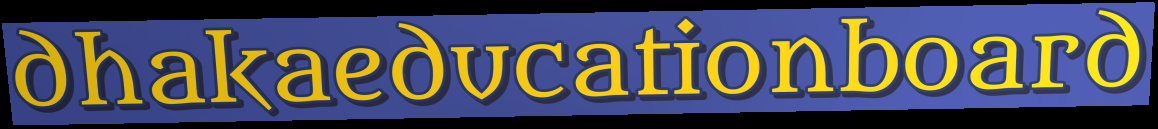
dhakaeducationboard